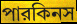
পারকিনস